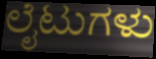
ಲೈಟುಗಳು